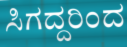
ಸಿಗದ್ದರಿಂದ